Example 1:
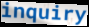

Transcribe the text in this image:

inquiry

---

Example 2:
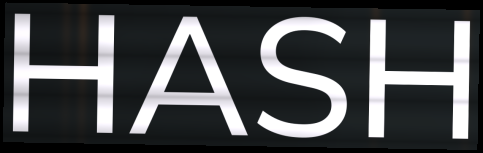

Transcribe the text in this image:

HASH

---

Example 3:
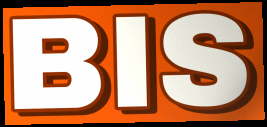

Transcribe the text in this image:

BIS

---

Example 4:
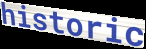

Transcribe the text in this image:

historic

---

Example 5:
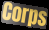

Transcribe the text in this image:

Corps